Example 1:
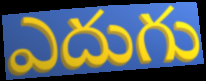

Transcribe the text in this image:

ఎదుగు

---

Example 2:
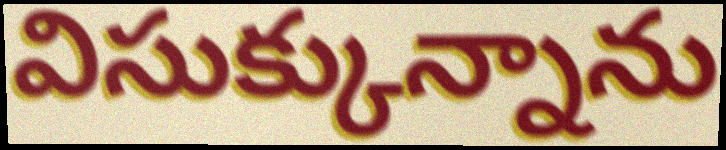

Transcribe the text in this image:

విసుక్కున్నాను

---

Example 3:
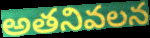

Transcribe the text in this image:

అతనివలన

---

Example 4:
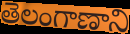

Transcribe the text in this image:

తెలంగాణాని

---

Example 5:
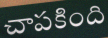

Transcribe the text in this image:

చాపకింది